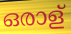
ഒരാള്